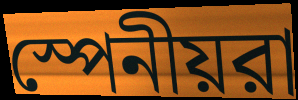
স্পেনীয়রা